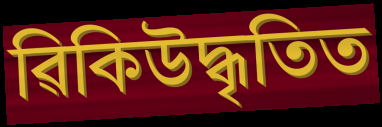
ৱিকিউদ্ধৃতিত